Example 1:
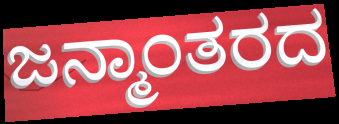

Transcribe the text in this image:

ಜನ್ಮಾಂತರದ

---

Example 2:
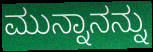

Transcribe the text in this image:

ಮುನ್ನಾನನ್ನು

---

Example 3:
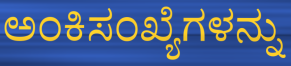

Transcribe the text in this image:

ಅಂಕಿಸಂಖ್ಯೆಗಳನ್ನು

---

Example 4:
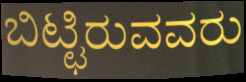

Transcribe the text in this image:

ಬಿಟ್ಟಿರುವವರು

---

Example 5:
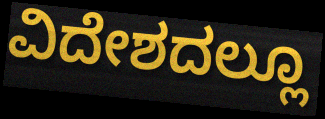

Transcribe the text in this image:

ವಿದೇಶದಲ್ಲೂ